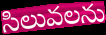
సిలువలను